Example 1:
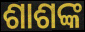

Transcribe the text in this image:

ଶାଶଙ୍କ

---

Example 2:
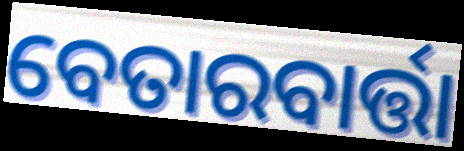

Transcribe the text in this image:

ବେତାରବାର୍ତ୍ତା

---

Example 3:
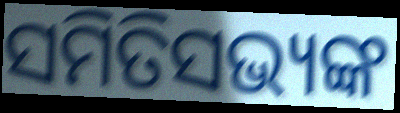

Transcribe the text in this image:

ସମିତିସଭ୍ୟଙ୍କ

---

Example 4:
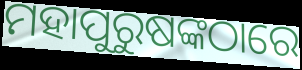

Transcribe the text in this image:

ମହାପୁରୁଷଙ୍କଠାରେ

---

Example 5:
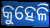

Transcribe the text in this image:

କୁହେଳି